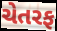
ચેતરફ